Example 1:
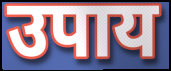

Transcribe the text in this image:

उपाय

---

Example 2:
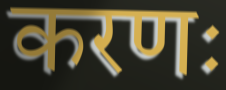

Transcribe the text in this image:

करणः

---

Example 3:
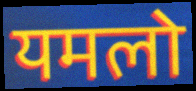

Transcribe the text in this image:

यमलो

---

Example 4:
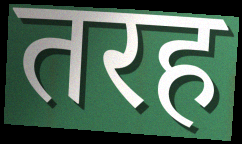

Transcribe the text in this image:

तरह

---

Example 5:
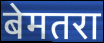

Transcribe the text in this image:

बेमतरा